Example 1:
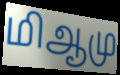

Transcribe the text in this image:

மிஆமு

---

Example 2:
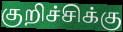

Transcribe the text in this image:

குறிச்சிக்கு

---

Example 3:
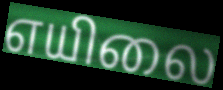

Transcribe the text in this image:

எயிலை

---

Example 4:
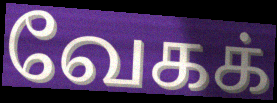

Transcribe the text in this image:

வேகக்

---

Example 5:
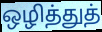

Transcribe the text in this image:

ஒழித்துத்